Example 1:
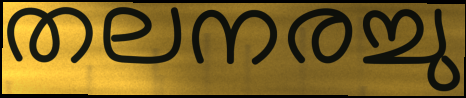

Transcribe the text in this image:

തലനരച്ചു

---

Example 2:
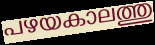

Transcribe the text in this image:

പഴയകാലത്തു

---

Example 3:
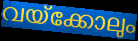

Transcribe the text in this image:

വയ്‌ക്കോലും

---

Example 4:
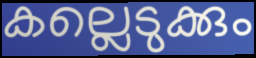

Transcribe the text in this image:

കല്ലെടുക്കും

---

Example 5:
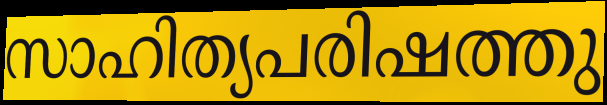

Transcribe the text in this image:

സാഹിത്യപരിഷത്തു